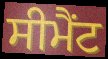
ਸੀਮੈਂਟ